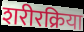
शरीरक्रिया